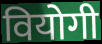
वियोगी